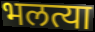
भलत्या